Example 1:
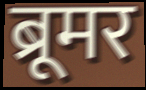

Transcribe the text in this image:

ब्रूमर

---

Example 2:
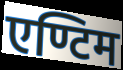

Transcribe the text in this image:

एण्टिम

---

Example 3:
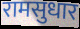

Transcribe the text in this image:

रामसुधार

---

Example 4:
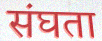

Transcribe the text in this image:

संघता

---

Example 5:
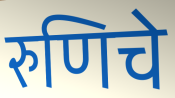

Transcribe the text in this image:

रुणिचे